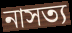
নাসত্য